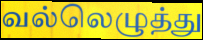
வல்லெழுத்து